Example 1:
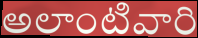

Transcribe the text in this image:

అలాంటివారి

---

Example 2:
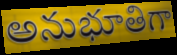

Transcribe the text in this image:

అనుభూతిగా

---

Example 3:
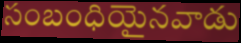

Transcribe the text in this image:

సంబంధియైనవాడు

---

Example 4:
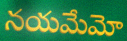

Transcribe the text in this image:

నయమేమో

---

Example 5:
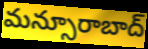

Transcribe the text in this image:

మన్సూరాబాద్